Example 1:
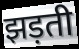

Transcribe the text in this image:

झड़ती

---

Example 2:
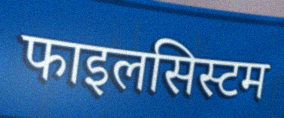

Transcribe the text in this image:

फाइलसिस्टम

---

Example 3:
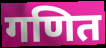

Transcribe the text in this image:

गणित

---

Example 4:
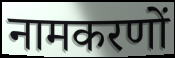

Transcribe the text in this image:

नामकरणों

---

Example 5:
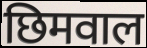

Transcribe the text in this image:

छिमवाल